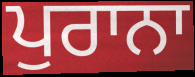
ਪੁਰਾਨਾ